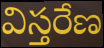
విస్తరేణ